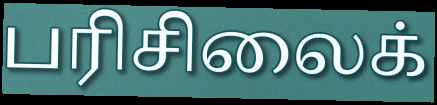
பரிசிலைக்